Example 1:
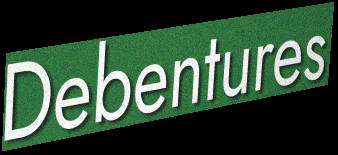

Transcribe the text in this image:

Debentures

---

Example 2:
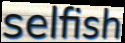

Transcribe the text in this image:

selfish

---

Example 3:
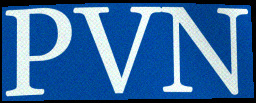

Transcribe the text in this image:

PVN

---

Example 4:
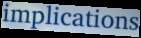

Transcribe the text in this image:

implications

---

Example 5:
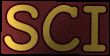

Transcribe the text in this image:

SCI